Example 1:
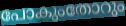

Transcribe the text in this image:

പോകുംതോറും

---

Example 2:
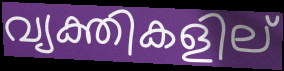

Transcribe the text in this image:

വ്യക്തികളില്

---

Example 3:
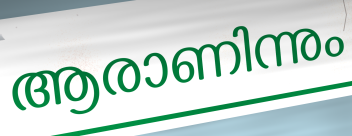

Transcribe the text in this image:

ആരാണിന്നും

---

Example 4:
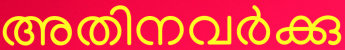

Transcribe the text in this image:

അതിനവർക്കു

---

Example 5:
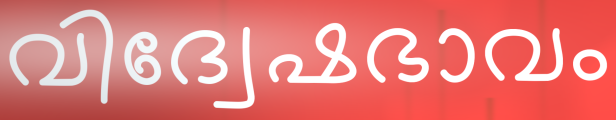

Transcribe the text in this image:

വിദ്വേഷഭാവം